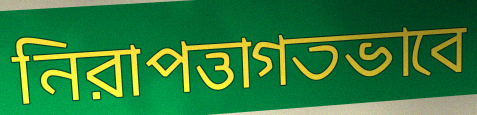
নিরাপত্তাগতভাবে